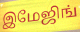
இமேஜிங்